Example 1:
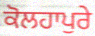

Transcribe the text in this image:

ਕੋਲਹਾਪੁਰੇ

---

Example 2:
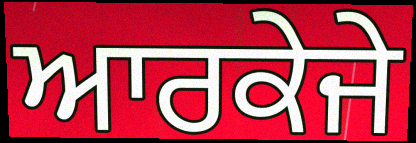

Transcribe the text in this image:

ਆਰਕੇਜੇ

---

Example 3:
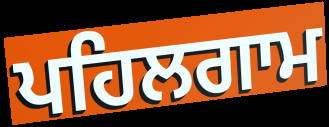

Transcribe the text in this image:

ਪਹਿਲਗਾਮ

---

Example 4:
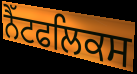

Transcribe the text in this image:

ਨੈੱਟਫਲਿਕਸ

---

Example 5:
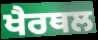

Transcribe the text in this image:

ਖੈਰਥਲ